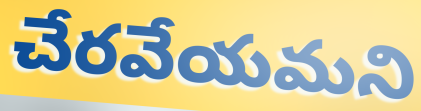
చేరవేయమని